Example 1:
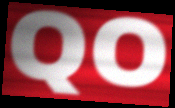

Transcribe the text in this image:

QO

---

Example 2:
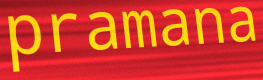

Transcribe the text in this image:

pramana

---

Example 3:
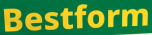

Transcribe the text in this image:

Bestform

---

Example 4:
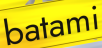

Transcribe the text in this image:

batami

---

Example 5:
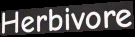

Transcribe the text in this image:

Herbivore